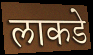
लाकडे